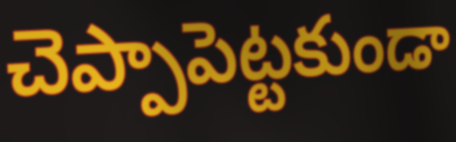
చెప్పాపెట్టకుండా